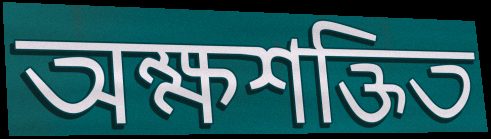
অক্ষশক্তিত